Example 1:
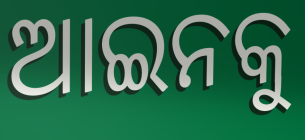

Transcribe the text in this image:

ଆଇନକୁ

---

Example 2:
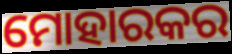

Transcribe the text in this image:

ମୋହାରକର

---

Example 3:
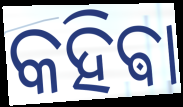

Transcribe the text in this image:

କହିଵା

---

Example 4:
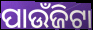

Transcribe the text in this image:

ପାଉଁଜିଟା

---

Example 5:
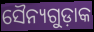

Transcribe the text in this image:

ସୈନ୍ୟଗୁଡ଼ାକ